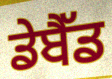
ਡੇਬੈੱਡ